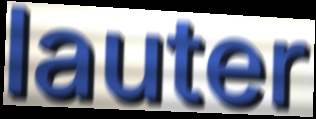
lauter